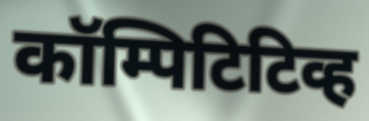
कॉम्पिटिटिव्ह